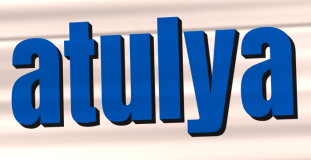
atulya